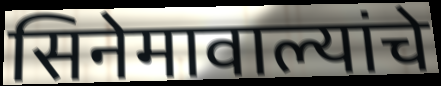
सिनेमावाल्यांचे